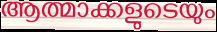
ആത്മാക്കളുടെയും